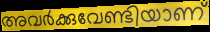
അവർക്കുവേണ്ടിയാണ്